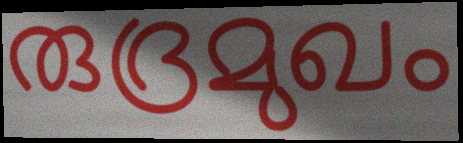
രുദ്രമുഖം